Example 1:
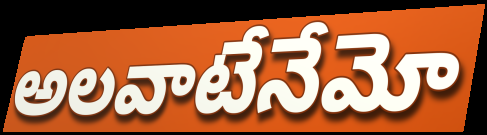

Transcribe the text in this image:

అలవాటేనేమో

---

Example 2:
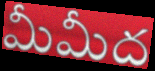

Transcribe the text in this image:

మీమీద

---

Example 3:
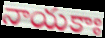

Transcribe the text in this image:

నాయకాః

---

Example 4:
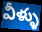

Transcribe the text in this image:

వీళ్ళు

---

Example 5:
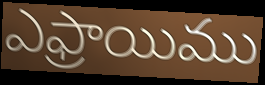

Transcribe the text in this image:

ఎఫ్రాయిము